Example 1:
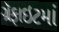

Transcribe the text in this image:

ગ્રૅફાઇટમાં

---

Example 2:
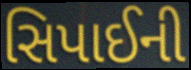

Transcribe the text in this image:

સિપાઈની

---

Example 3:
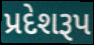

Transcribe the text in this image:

પ્રદેશરૂપ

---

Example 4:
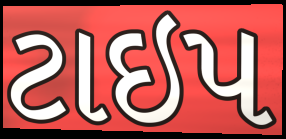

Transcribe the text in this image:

ટાઇપ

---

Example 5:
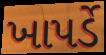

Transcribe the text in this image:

ખાપર્ડે